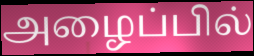
அழைப்பில்